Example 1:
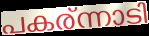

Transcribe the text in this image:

പകര്ന്നാടി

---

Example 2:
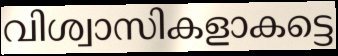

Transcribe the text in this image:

വിശ്വാസികളാകട്ടെ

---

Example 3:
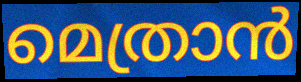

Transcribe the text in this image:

മെത്രാൻ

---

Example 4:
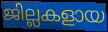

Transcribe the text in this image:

ജില്ലകളായ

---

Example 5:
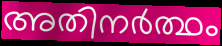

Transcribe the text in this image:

അതിനർത്ഥം